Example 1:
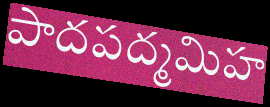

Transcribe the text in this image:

పాదపద్మమిహ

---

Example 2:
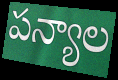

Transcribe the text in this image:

పన్యాల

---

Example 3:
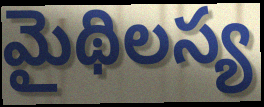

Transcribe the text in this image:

మైథిలస్య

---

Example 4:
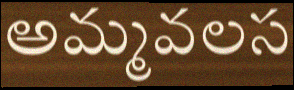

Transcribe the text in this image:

అమ్మవలస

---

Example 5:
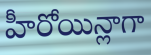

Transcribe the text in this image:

హీరోయిన్లాగా